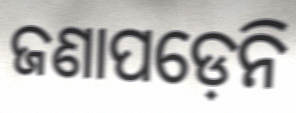
ଜଣାପଡ଼େନି